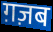
ग़ज़ब